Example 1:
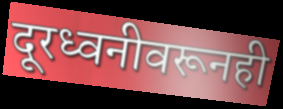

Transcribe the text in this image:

दूरध्वनीवरूनही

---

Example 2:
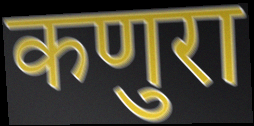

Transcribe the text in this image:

कणुरा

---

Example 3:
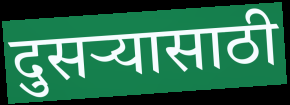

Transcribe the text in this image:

दुसऱ्यासाठी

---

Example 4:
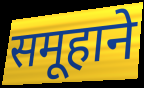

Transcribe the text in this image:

समूहाने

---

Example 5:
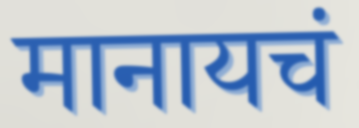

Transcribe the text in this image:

मानायचं